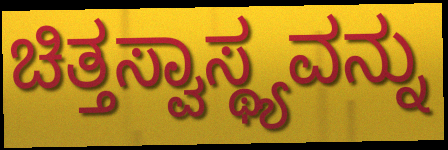
ಚಿತ್ತಸ್ವಾಸ್ಥ್ಯವನ್ನು